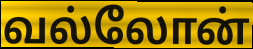
வல்லோன்